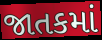
જાતકમાં